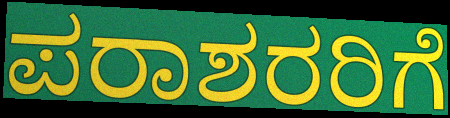
ಪರಾಶರರಿಗೆ